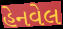
હેનવેલ